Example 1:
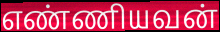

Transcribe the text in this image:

எண்ணியவன்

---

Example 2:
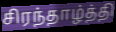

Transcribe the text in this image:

சிரந்தாழ்த்தி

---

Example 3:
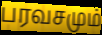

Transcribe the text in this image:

பரவசமும்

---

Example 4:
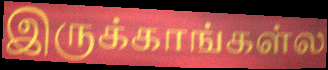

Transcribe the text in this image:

இருக்காங்கள்ல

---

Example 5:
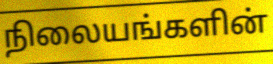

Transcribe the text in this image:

நிலையங்களின்